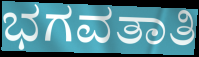
ಭಗವತಾತಿ